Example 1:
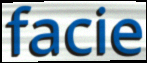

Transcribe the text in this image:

facie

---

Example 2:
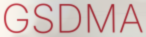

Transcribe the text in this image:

GSDMA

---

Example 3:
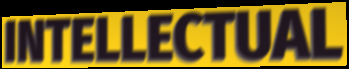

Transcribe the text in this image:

INTELLECTUAL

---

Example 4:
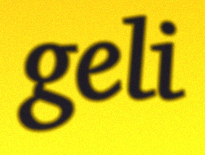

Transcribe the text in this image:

geli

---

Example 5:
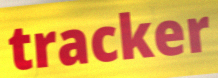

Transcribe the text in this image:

tracker